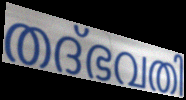
തദ്ഭവതി